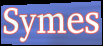
Symes